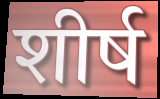
शीर्ष